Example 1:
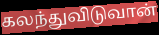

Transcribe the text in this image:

கலந்துவிடுவான்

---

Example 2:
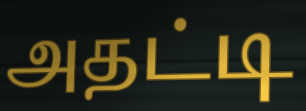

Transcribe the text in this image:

அதட்டி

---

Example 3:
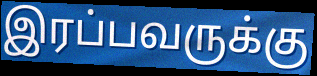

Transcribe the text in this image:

இரப்பவருக்கு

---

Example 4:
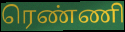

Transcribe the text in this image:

ரெண்ணி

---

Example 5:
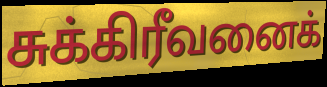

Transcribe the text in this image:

சுக்கிரீவனைக்